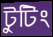
টুটিং